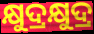
କ୍ଷୁଦ୍ରକ୍ଷୁଦ୍ର